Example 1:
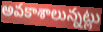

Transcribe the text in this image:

అవకాశాలున్నట్లు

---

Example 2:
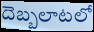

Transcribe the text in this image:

దెబ్బలాటలో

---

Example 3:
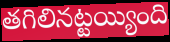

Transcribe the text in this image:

తగిలినట్టయ్యింది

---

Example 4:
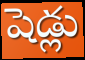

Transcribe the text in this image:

షెడ్లు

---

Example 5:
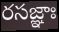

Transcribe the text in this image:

రసజ్ఞాః